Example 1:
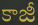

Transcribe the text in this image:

కాజీ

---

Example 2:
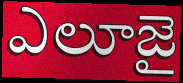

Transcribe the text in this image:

ఎలూజై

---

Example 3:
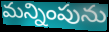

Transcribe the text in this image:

మన్నింపును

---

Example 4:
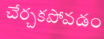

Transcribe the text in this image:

చేర్చకపోవడం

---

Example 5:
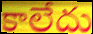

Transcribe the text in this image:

కాలేదు